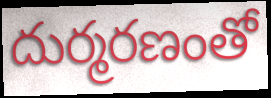
దుర్మరణంతో